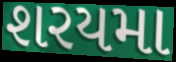
શરયમા